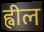
ह्वील